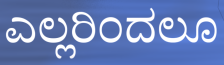
ಎಲ್ಲರಿಂದಲೂ